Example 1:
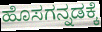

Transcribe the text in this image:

ಹೊಸಗನ್ನಡಕ್ಕೆ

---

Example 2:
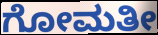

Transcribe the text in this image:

ಗೋಮತೀ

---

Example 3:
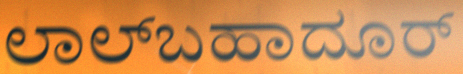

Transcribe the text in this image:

ಲಾಲ್‌ಬಹಾದೂರ್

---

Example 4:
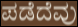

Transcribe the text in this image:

ಪಡೆದೆವು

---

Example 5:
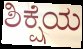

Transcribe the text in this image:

ಶಿಕ್ಷೆಯ